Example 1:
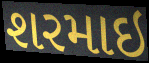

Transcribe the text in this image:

શરમાઇ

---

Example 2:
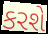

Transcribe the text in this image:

કરશે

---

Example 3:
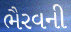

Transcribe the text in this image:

ભૈરવની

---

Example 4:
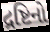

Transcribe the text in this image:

દ્રષ્ટિનો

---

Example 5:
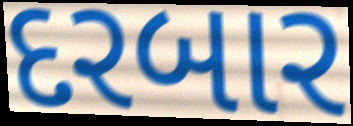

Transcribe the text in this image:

દરબાર